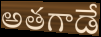
అతగాడే